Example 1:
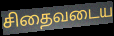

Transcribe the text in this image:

சிதைவடைய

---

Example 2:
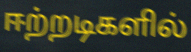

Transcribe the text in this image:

ஈற்றடிகளில்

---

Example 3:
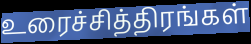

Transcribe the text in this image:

உரைச்சித்திரங்கள்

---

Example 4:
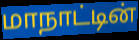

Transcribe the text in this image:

மாநாட்டின்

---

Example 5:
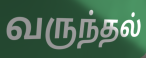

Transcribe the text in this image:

வருந்தல்